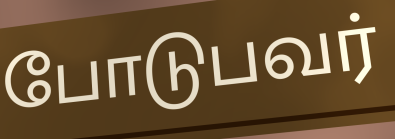
போடுபவர்